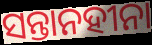
ସନ୍ତାନହୀନା